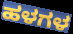
ಹಳಗಳ